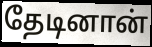
தேடினான்